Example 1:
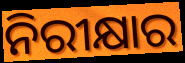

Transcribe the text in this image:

ନିରୀକ୍ଷାର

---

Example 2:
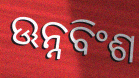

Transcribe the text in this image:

ଊନ୍ନବିଂଶ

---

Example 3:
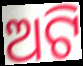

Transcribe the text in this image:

ଅଟି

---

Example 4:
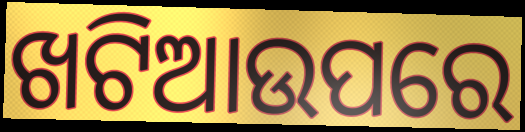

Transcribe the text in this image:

ଖଟିଆଉପରେ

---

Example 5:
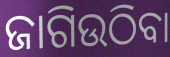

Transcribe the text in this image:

ଜାଗିଉଠିବା